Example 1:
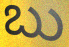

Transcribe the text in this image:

ಬು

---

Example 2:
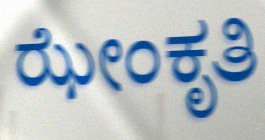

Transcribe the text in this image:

ಝೇಂಕೃತಿ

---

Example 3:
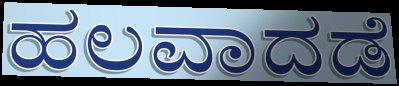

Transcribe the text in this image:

ಹಲವಾದಡೆ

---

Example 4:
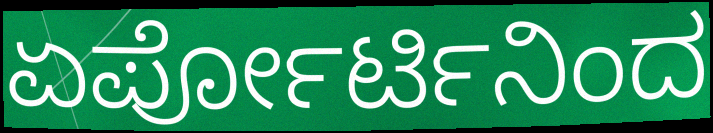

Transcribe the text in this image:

ಏರ್ಪೋರ್ಟಿನಿಂದ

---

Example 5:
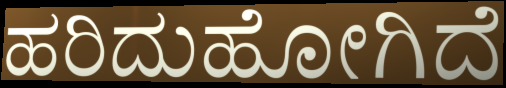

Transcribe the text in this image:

ಹರಿದುಹೋಗಿದೆ